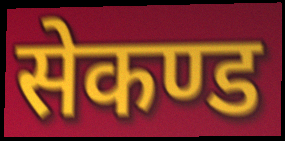
सेकण्ड